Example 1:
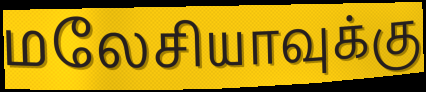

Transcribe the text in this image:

மலேசியாவுக்கு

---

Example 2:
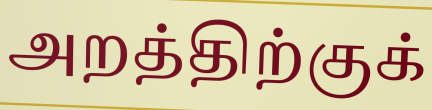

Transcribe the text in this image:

அறத்திற்குக்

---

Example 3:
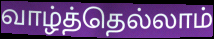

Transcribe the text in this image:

வாழ்த்தெல்லாம்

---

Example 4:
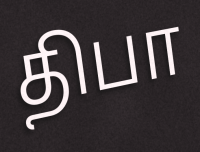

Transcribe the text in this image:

திபா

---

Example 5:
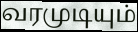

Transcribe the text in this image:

வரமுடியும்